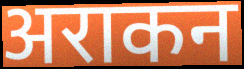
अराकन